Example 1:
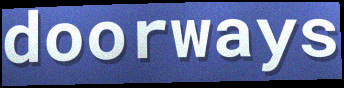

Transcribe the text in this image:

doorways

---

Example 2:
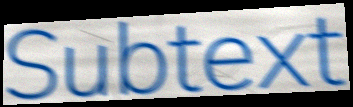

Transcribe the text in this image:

Subtext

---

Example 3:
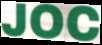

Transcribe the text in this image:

JOC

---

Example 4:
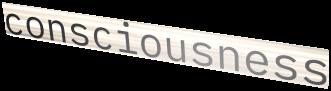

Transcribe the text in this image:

consciousness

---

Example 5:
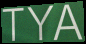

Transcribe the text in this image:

TYA